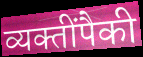
व्यक्‍तींपैकी